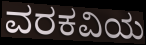
ವರಕವಿಯ